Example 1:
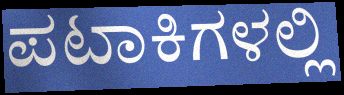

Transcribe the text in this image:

ಪಟಾಕಿಗಳಲ್ಲಿ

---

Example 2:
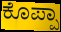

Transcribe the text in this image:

ಕೊಪ್ಪಾ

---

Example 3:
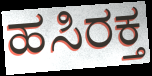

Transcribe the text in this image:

ಹಸಿರಕ್ತ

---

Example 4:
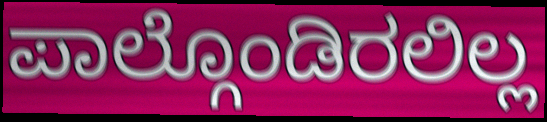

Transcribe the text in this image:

ಪಾಲ್ಗೊಂಡಿರಲಿಲ್ಲ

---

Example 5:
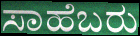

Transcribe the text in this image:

ಸಾಹೆಬರು